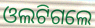
ଓଲଟିଗଲେ